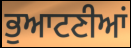
ਭੁਆਟਣੀਆਂ